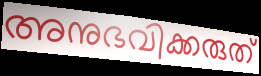
അനുഭവിക്കരുത്